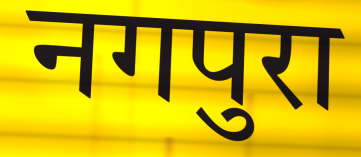
नगपुरा